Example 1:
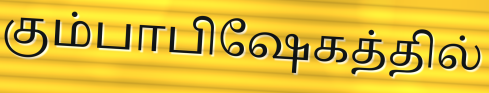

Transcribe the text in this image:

கும்பாபிஷேகத்தில்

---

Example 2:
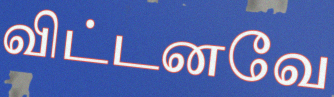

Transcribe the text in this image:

விட்டனவே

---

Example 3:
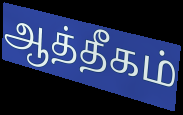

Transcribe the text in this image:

ஆத்தீகம்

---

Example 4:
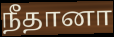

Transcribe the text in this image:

நீதானா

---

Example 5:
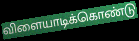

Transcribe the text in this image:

விளையாடிக்கொண்டு